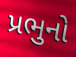
પ્રભુનો